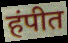
हंपीत